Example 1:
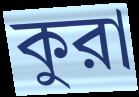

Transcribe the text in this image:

কুরা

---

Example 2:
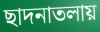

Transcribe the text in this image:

ছাদনাতলায়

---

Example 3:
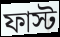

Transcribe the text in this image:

ফাস্ট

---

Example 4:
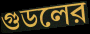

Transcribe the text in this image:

গুডলের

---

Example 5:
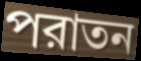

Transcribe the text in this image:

পরাতন